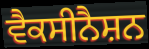
ਵੈਕਸੀਨੈਸ਼ਨ